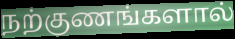
நற்குணங்களால்